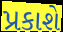
પ્રકાશે